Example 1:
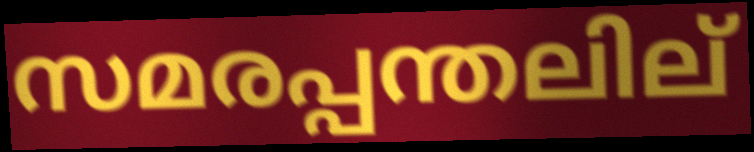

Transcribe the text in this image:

സമരപ്പന്തലില്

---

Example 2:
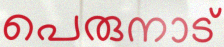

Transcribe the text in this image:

പെരുനാട്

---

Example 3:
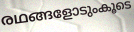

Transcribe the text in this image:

രഥങ്ങളോടുംകൂടെ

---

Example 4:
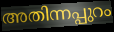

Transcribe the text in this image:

അതിന്നപ്പുറം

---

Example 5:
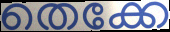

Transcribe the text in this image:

തെക്കേ